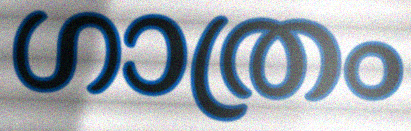
ഗാത്രം